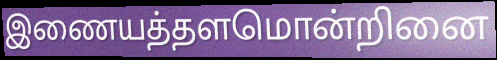
இணையத்தளமொன்றினை